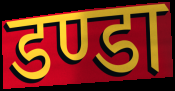
डण्डा